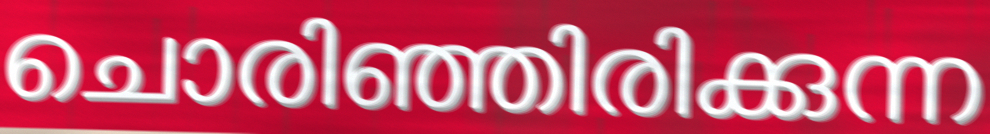
ചൊരിഞ്ഞിരിക്കുന്ന